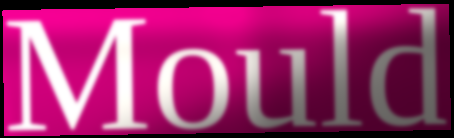
Mould